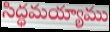
సిద్ధమయ్యాము